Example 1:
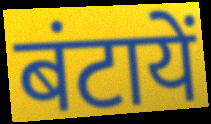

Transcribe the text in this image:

बंटायें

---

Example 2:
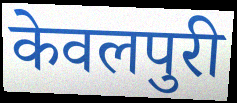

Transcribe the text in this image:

केवलपुरी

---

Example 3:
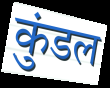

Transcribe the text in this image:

कुंडल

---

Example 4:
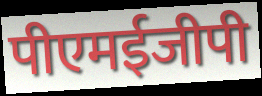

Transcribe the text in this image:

पीएमईजीपी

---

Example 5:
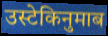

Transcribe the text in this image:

उस्टेकिनुमाब